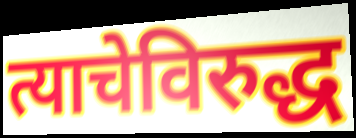
त्याचेविरुद्ध